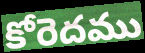
కోరెదము